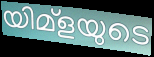
യിമ്ളയുടെ